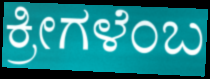
ಕ್ರೀಗಳೆಂಬ